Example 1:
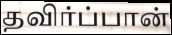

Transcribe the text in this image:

தவிர்ப்பான்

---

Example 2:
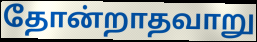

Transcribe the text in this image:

தோன்றாதவாறு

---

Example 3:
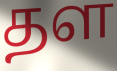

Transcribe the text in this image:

தள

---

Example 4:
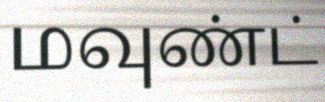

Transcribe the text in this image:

மவுண்ட்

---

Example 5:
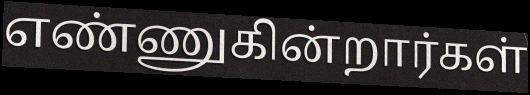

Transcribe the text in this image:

எண்ணுகின்றார்கள்